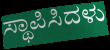
ಸ್ಥಾಪಿಸಿದಳು